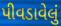
પીવડાવેલું